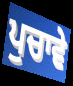
ਪੁਚਾਵੇ